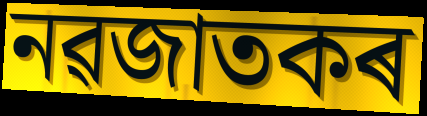
নৱজাতকৰ